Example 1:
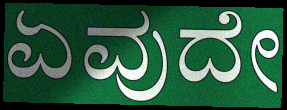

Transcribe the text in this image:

ಏವುದೇ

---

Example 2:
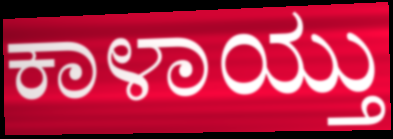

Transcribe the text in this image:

ಕಾಳಾಯ್ತು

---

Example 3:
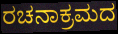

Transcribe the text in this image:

ರಚನಾಕ್ರಮದ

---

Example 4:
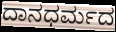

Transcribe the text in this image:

ದಾನಧರ್ಮದ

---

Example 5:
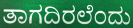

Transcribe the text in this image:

ತಾಗದಿರಲೆಂದು